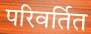
परिवर्तित